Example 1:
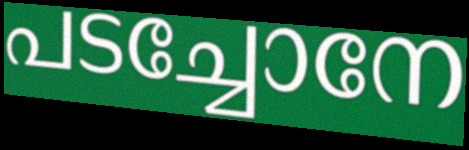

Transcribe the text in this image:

പടച്ചോനേ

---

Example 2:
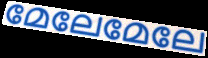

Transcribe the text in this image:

മേലേമേലേ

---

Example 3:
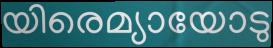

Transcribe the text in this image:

യിരെമ്യായോടു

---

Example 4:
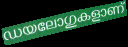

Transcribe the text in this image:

ഡയലോഗുകളാണ്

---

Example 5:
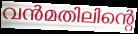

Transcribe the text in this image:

വൻമതിലിന്റെ